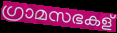
ഗ്രാമസഭകള്